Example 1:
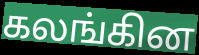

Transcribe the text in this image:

கலங்கின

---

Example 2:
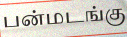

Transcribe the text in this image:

பன்மடங்கு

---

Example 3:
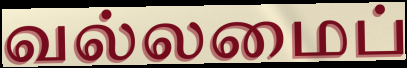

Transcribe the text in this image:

வல்லமைப்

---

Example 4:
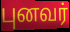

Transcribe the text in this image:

புனவர்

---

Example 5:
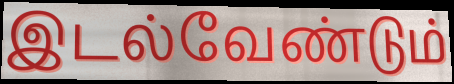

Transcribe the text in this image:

இடல்வேண்டும்